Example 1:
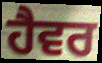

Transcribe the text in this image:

ਹੈਵਰ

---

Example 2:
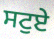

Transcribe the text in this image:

ਸਟੁਏ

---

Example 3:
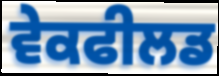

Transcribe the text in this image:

ਵੇਕਫੀਲਡ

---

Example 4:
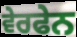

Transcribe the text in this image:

ਵੇਰਫੇਨ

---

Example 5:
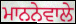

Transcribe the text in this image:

ਮਾਨਨੇਵਾਲੇ